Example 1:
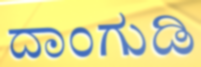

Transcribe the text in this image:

ದಾಂಗುಡಿ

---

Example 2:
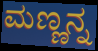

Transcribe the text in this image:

ಮಣ್ಣನ್ನ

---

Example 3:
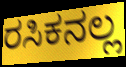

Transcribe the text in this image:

ರಸಿಕನಲ್ಲ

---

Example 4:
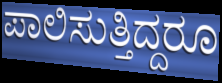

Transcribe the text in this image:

ಪಾಲಿಸುತ್ತಿದ್ದರೂ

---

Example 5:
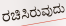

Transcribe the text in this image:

ರಚಿಸಿರುವುದು